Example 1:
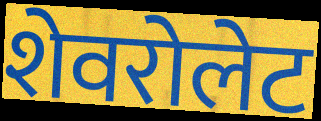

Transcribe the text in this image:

शेवरोलेट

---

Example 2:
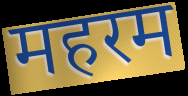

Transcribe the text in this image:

महरम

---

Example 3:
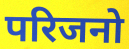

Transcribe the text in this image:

परिजनो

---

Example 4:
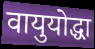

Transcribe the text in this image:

वायुयोद्धा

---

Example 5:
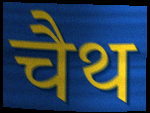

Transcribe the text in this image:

चैथ